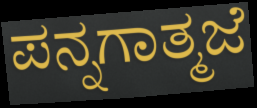
ಪನ್ನಗಾತ್ಮಜೆ